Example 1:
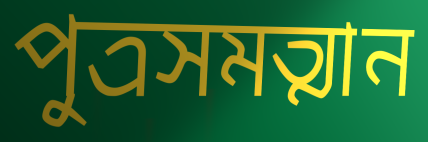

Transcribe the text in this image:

পুত্রসমত্মান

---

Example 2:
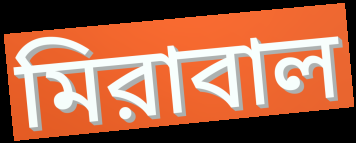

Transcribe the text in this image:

মিরাবাল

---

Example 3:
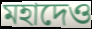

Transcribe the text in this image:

মহাদেও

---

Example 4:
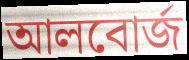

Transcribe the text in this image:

আলবোর্জ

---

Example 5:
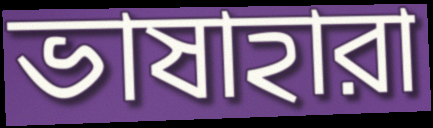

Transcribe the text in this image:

ভাষাহারা